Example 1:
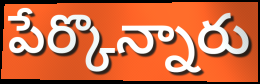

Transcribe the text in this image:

పేర్కొన్నారు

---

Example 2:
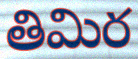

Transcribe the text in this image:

తిమిర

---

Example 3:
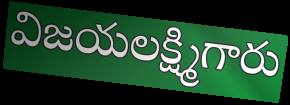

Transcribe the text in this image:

విజయలక్ష్మిగారు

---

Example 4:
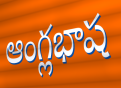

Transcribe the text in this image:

ఆంగ్లభాష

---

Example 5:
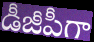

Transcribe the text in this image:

డీజీపీగా